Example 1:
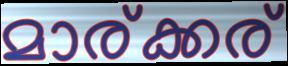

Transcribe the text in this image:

മാര്ക്കര്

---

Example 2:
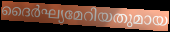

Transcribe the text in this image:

ദൈർഘ്യമേറിയതുമായ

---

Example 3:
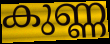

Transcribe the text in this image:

കുണ്ണ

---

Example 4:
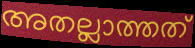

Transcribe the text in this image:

അതല്ലാത്തത്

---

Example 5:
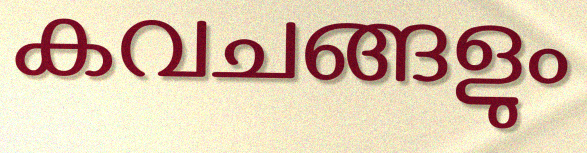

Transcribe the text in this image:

കവചങ്ങളും